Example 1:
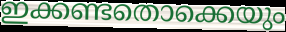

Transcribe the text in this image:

ഇക്കണ്ടതൊക്കെയും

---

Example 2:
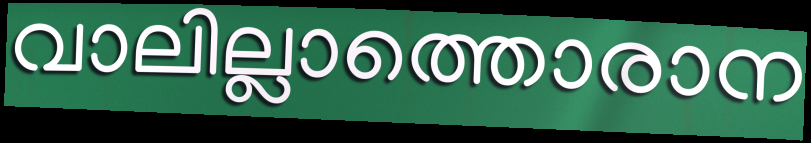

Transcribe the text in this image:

വാലില്ലാത്തൊരാന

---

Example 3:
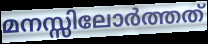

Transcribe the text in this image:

മനസ്സിലോർത്തത്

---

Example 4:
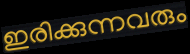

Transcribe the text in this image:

ഇരിക്കുന്നവരും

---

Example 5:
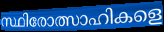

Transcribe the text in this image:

സ്ഥിരോത്സാഹികളെ